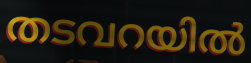
തടവറയിൽ